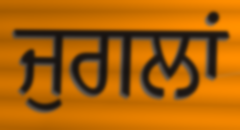
ਜੁਗਲਾਂ